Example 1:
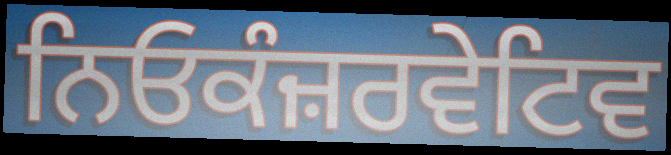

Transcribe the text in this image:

ਨਿਓਕੰਜ਼ਰਵੇਟਿਵ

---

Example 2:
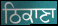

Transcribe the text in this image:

ਠਿਕਾਣਾ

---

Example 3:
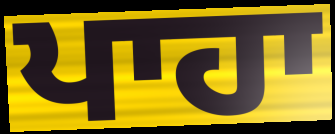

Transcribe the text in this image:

ਪਾਹਾ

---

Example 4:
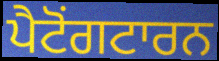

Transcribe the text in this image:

ਪੈਟੋਂਗਟਾਰਨ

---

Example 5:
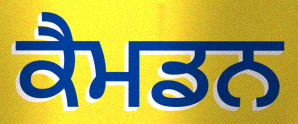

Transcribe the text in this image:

ਕੈਮਡਨ